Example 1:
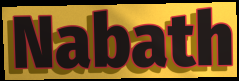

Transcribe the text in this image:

Nabath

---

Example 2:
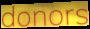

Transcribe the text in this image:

donors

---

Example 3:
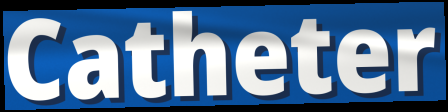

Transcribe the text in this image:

Catheter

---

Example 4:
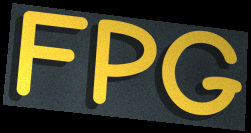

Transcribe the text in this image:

FPG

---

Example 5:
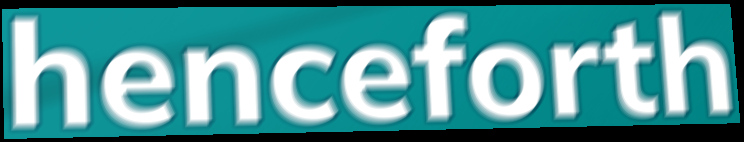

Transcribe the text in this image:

henceforth